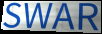
SWAR